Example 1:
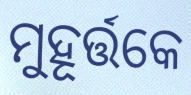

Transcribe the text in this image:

ମୁହୂର୍ତ୍ତକେ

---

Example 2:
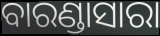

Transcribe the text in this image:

ବାରଣ୍ଡାସାରା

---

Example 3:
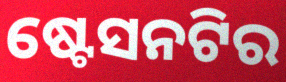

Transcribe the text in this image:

ଷ୍ଟେସନଟିର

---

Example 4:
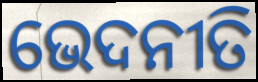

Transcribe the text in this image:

ଭେଦନୀତି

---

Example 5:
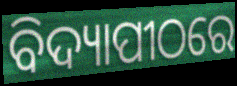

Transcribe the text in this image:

ବିଦ୍ୟାପୀଠରେ